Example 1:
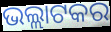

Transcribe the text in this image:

ଭଲ୍ଲାଟକର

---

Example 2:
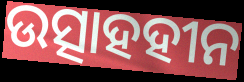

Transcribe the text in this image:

ଉତ୍ସାହହୀନ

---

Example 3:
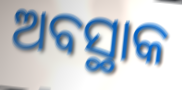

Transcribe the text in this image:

ଅବସ୍ଥାକ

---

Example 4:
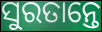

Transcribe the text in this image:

ସୁରତାନ୍ତେ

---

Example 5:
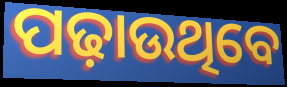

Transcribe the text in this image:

ପଢ଼ାଉଥିବେ